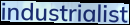
industrialist